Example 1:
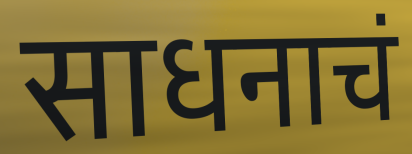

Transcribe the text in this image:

साधनाचं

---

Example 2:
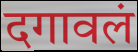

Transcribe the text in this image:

दगावलं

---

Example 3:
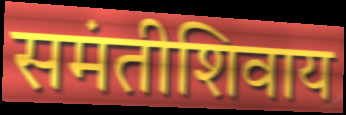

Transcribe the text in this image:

समंतीशिवाय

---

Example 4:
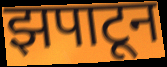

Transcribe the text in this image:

झपाटून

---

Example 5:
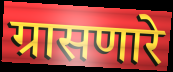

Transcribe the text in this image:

ग्रासणारे